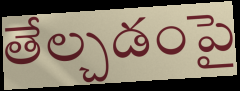
తేల్చడంపై